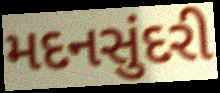
મદનસુંદરી